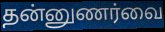
தன்னுணர்வை